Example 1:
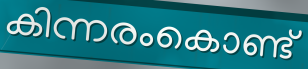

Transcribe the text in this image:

കിന്നരംകൊണ്ട്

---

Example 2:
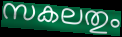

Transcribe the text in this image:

സകലതും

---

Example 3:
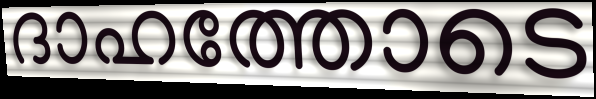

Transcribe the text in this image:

ദാഹത്തോടെ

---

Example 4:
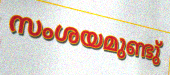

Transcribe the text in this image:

സംശയമുണ്ടു്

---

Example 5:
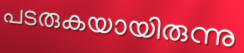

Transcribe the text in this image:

പടരുകയായിരുന്നു